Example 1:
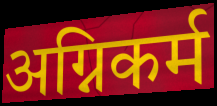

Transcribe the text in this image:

अग्निकर्म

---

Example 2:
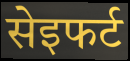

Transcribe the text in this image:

सेइफर्ट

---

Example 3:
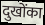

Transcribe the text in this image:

दुखोंका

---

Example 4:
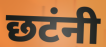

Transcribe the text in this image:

छटंनी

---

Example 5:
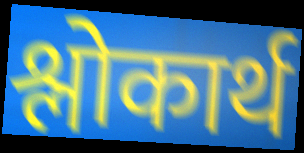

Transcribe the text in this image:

श्लोकार्थ